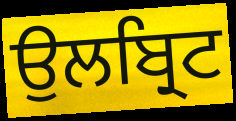
ਉਲਬ੍ਰਿਟ